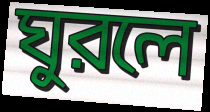
ঘুরলে